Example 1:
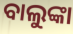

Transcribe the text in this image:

ବାଲୁଙ୍କା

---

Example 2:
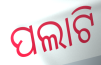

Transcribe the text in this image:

ପଲାଟି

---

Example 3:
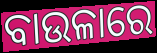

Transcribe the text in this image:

ବାଉଳାରେ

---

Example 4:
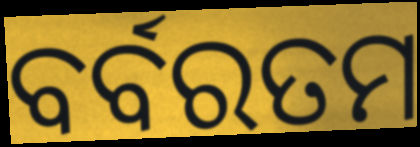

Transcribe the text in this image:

ବର୍ବରତମ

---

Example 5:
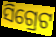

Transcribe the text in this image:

ସିଗ୍ରେଟ